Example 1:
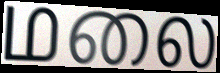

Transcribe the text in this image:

மலை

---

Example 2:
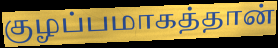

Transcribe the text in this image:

குழப்பமாகத்தான்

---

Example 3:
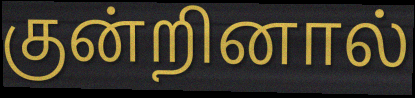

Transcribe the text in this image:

குன்றினால்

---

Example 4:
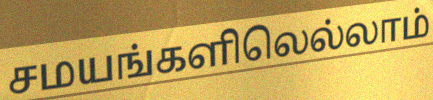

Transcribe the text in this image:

சமயங்களிலெல்லாம்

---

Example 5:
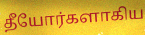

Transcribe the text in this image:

தீயோர்களாகிய